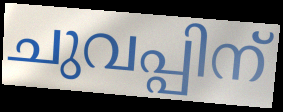
ചുവപ്പിന്